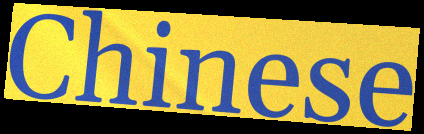
Chinese